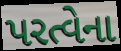
પરત્વેના